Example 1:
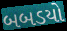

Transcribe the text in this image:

બબડયો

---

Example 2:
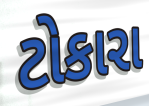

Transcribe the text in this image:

ટોકારા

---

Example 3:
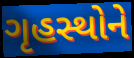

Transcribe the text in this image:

ગૃહસ્થોને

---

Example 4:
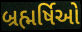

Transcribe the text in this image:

બ્રહ્મર્ષિઓ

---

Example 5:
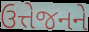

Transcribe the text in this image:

ઉત્તેજનને